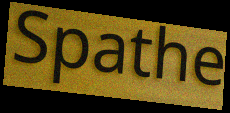
Spathe